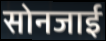
सोनजाई